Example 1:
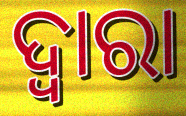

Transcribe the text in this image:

ଦ୍ବାରା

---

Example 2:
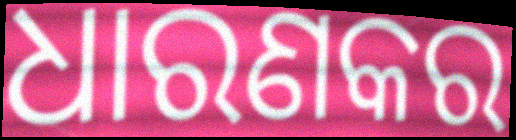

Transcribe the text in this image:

ଧାରଣକର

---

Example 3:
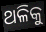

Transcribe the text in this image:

ଥଳିକୁ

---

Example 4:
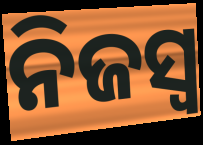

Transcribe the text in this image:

ନିଜସ୍ୱ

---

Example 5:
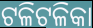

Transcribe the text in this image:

ଟଳିଟଳିକା